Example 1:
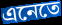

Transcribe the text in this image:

এনেতে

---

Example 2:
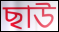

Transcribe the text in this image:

ছাউ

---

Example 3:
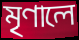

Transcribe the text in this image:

মৃণালে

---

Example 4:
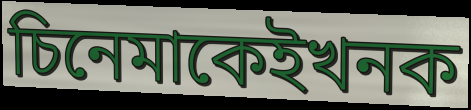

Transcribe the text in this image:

চিনেমাকেইখনক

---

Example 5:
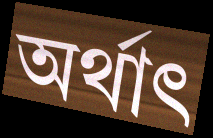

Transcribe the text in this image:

অৰ্থাৎ